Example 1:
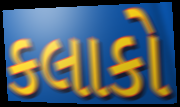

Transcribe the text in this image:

કલાકો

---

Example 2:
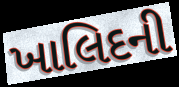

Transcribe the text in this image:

ખાલિદની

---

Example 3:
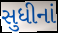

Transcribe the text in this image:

સુધીનાં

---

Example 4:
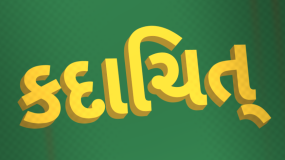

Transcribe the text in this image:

કદાચિત્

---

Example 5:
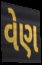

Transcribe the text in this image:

વેણ